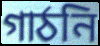
গাঠনি